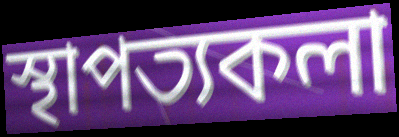
স্থাপত্যকলা